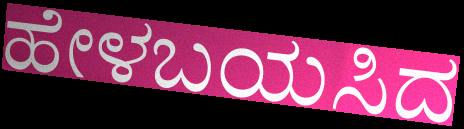
ಹೇಳಬಯಸಿದ